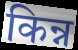
किन्न